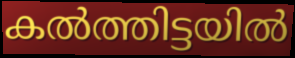
കൽത്തിട്ടയിൽ